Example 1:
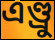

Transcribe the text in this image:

এণ্ড্ৰু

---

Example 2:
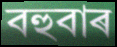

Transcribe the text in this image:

বহুবাৰ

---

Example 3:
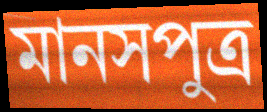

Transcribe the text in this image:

মানসপুত্ৰ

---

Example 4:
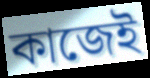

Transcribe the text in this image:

কাজেই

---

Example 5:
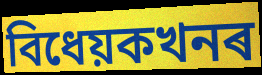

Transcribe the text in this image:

বিধেয়কখনৰ